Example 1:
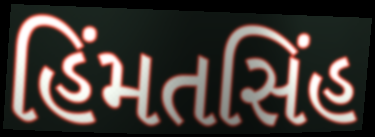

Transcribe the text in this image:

હિંમતસિંહ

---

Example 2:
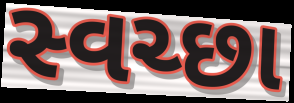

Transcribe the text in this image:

સ્વચ્છા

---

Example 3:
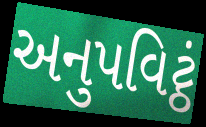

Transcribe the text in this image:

અનુપવિટ્ઠં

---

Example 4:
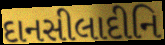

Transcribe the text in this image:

દાનસીલાદીનિ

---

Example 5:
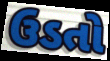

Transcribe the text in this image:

ઉડતો